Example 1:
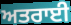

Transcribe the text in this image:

ਅਤਰਾਈ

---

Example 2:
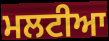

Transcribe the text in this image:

ਮਲਟੀਆ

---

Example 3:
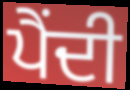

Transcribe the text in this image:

ਪੈਂਦੀ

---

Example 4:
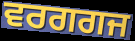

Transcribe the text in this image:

ਵਰਗਗਜ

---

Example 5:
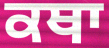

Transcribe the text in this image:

ਕਥਾ